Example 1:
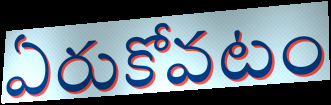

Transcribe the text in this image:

ఏరుకోవటం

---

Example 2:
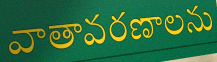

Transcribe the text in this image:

వాతావరణాలను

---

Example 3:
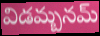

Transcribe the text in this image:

విడమ్బనమ్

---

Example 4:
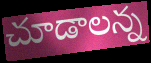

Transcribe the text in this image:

చూడాలన్న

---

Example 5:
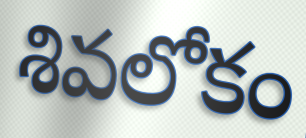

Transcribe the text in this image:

శివలోకం